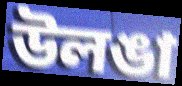
উলঙা